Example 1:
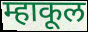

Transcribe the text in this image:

म्हाकूल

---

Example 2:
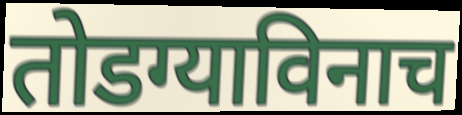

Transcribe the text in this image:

तोडग्याविनाच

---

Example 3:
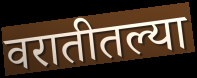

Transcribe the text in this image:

वरातीतल्या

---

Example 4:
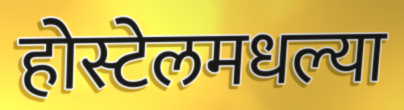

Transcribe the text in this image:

होस्टेलमधल्या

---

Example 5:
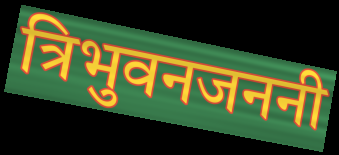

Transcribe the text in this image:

त्रिभुवनजननी